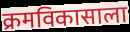
क्रमविकासाला